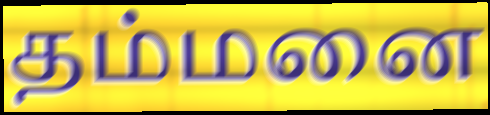
தம்மனை